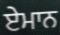
ਏਮਾਨ